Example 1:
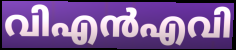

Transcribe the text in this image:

വിഎൻഎവി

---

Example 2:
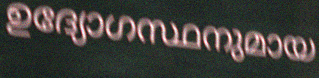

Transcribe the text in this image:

ഉദ്യോഗസ്ഥനുമായ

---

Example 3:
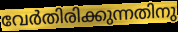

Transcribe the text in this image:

വേർതിരിക്കുന്നതിനു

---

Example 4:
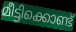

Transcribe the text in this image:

മീട്ടിക്കൊണ്ട്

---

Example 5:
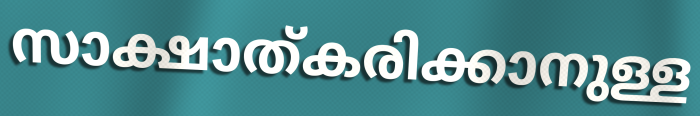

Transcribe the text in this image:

സാക്ഷാത്കരിക്കാനുള്ള